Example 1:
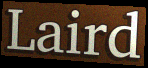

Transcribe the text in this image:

Laird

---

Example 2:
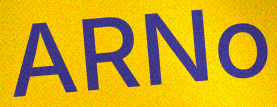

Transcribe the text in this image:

ARNo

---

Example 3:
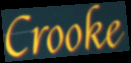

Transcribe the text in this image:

Crooke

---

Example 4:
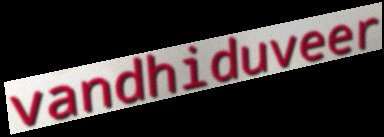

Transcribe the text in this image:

vandhiduveer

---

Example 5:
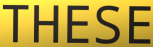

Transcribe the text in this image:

THESE